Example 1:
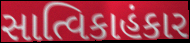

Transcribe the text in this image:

સાત્વિકાહંકાર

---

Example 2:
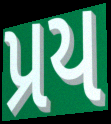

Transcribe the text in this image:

પ્રય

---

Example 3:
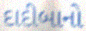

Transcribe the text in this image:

દાદીબાનો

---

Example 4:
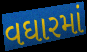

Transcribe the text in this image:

વઘારમાં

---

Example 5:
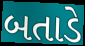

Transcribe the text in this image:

બતાડે